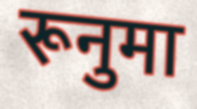
रूनुमा